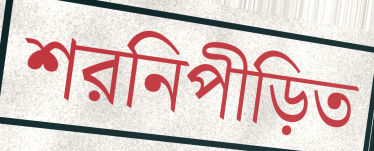
শরনিপীড়িত